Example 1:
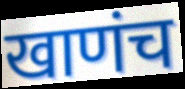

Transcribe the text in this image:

खाणंच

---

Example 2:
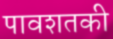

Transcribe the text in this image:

पावशतकी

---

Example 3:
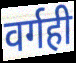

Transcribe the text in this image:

वर्गही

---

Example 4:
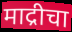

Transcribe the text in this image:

माद्रीचा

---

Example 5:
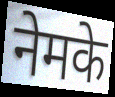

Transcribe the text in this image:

नेमके